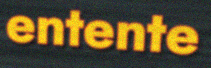
entente